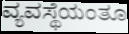
ವ್ಯವಸ್ಥೆಯಂತೂ